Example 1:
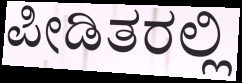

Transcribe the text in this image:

ಪೀಡಿತರಲ್ಲಿ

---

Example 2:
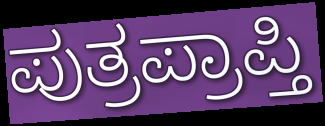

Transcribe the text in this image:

ಪುತ್ರಪ್ರಾಪ್ತಿ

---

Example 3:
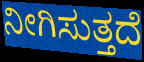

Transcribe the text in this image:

ನೀಗಿಸುತ್ತದೆ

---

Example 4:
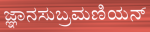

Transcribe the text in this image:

ಜ್ಞಾನಸುಬ್ರಮಣಿಯನ್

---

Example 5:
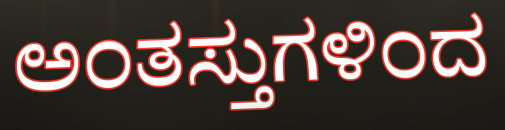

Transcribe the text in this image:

ಅಂತಸ್ತುಗಳಿಂದ